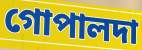
গোপালদা